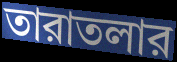
তারাতলার